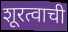
शूरत्वाची